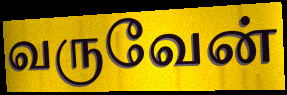
வருவேன்